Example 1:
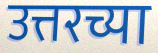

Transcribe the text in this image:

उत्तरच्या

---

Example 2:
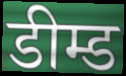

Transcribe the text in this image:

डीम्ड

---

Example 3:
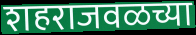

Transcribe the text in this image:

शहराजवळच्या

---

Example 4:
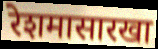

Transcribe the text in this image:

रेशमासारखा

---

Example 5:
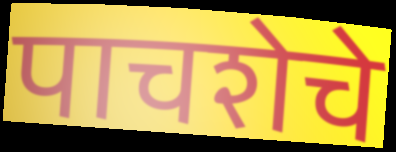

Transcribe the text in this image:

पाचशेचे